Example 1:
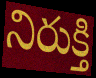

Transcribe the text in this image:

నిరుక్తి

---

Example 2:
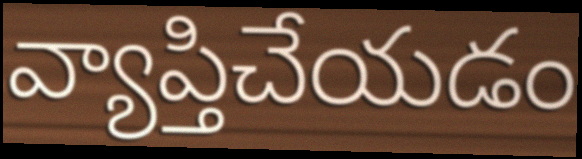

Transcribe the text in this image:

వ్యాప్తిచేయడం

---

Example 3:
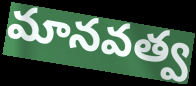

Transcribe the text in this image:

మానవత్వ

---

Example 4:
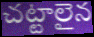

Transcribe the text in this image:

చట్టాలైన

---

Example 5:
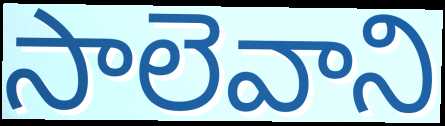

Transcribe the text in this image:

సాలెవాని